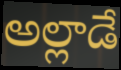
అల్లాడే